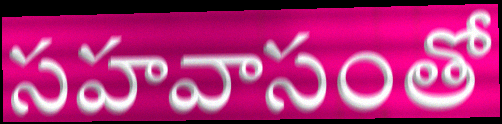
సహవాసంతో